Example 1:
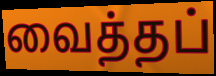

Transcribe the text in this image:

வைத்தப்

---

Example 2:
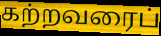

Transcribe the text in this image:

கற்றவரைப்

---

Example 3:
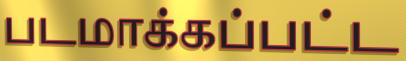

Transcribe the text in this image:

படமாக்கப்பட்ட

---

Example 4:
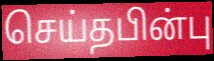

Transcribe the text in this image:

செய்தபின்பு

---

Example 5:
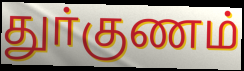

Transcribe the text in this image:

துர்குணம்